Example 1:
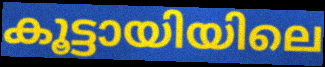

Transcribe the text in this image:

കൂട്ടായിയിലെ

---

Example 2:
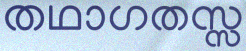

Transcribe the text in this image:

തഥാഗതസ്സ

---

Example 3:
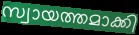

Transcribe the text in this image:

സ്വായത്തമാക്കി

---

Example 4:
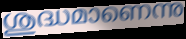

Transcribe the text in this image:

ശുദ്ധമാണെന്നു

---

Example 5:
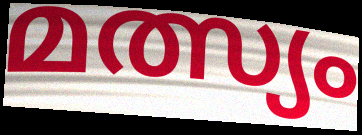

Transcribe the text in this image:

മത്സ്യം